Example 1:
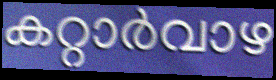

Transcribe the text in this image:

കറ്റാർവാഴ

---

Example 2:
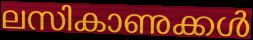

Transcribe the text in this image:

ലസികാണുക്കൾ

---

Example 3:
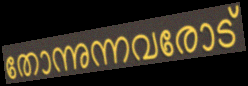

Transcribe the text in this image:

തോന്നുന്നവരോട്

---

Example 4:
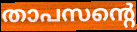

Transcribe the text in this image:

താപസന്റെ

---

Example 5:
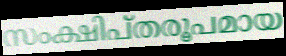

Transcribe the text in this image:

സംക്ഷിപ്തരൂപമായ